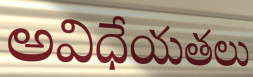
అవిధేయతలు